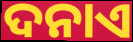
ଦନାଏ